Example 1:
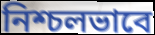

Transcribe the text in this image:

নিশ্চলভাবে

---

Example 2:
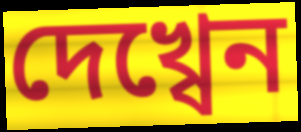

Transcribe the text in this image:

দেখ্বেন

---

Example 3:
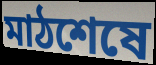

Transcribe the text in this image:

মাঠশেষে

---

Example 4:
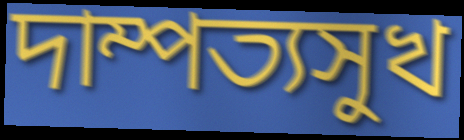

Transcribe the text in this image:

দাম্পত্যসুখ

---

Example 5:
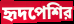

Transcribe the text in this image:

হৃদপেশির